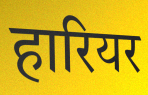
हारियर